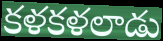
కళకళలాడు